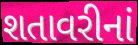
શતાવરીનાં